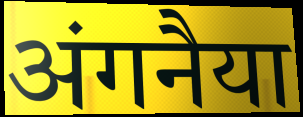
अंगनैया